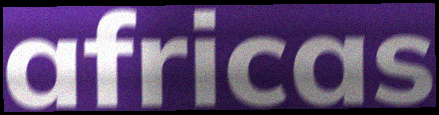
africas